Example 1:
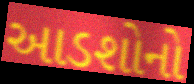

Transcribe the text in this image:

આડશોનો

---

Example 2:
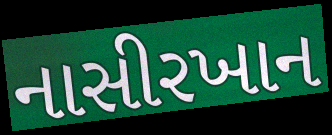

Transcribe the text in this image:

નાસીરખાન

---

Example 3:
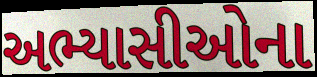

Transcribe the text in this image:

અભ્યાસીઓના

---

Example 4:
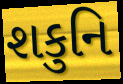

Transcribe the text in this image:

શકુનિ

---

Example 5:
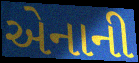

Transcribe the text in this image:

એનાની